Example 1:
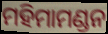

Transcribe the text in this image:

ମହିମାମଣ୍ଡନ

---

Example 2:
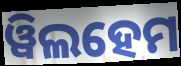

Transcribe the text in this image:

ୱିଲହେମ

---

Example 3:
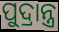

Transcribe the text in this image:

ପୁଦ୍ରାନ୍ତ୍ର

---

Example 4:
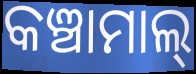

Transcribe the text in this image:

କଞ୍ଚାମାଲ୍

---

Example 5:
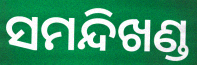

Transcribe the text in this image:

ସମନ୍ଦିଖଣ୍ଡ